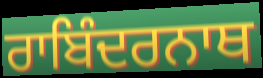
ਰਾਬਿੰਦਰਨਾਥ